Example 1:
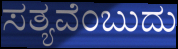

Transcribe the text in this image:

ಸತ್ಯವೆಂಬುದು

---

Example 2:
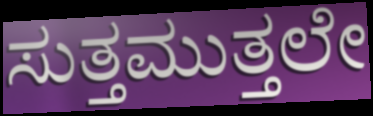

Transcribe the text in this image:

ಸುತ್ತಮುತ್ತಲೇ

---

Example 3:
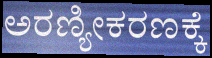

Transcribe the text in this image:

ಅರಣ್ಯೀಕರಣಕ್ಕೆ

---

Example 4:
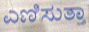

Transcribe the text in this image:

ಎಣಿಸುತ್ತಾ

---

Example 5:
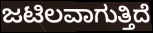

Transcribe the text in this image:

ಜಟಿಲವಾಗುತ್ತಿದೆ